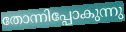
തോന്നിപ്പോകുന്നു